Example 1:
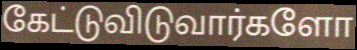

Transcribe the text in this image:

கேட்டுவிடுவார்களோ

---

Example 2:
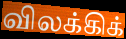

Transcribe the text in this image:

விலக்கிக்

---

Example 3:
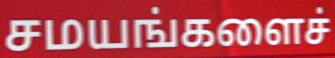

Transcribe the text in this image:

சமயங்களைச்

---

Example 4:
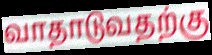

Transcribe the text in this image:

வாதாடுவதற்கு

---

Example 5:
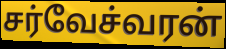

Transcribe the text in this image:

சர்வேச்வரன்